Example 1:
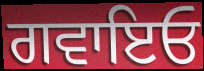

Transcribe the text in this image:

ਗਵਾਇਓ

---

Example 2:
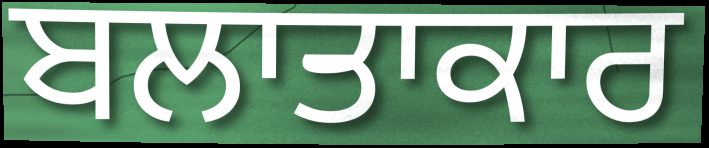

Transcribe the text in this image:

ਬਲਾਤਾਕਾਰ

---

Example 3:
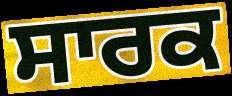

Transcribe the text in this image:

ਸਾਰਕ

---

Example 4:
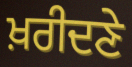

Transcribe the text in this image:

ਖ਼ਰੀਦਣੇ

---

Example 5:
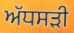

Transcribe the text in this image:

ਅੱਧਸੜੀ